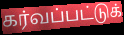
கர்வப்பட்டுக்